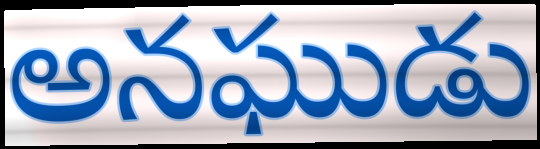
అనఘుడు